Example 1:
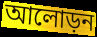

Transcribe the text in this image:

আলোড়ন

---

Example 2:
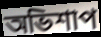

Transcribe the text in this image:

অভিশাপ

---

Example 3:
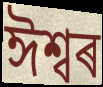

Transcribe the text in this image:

ঈশ্বৰ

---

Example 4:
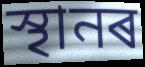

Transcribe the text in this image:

স্থানৰ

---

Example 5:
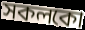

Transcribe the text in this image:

সকলকো